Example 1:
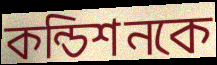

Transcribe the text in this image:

কন্ডিশনকে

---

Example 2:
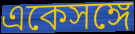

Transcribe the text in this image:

একেসঙ্গে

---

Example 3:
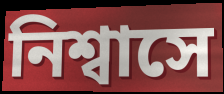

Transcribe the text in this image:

নিশ্বাসে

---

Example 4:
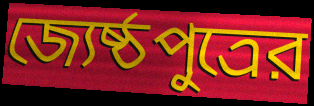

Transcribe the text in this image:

জ্যেষ্ঠপুত্রের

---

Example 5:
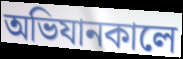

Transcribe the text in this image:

অভিযানকালে